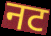
नट